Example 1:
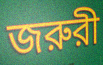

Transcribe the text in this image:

জরুরী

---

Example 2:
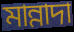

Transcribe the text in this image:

মান্নাদা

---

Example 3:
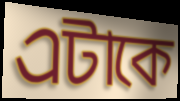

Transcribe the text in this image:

এটাকে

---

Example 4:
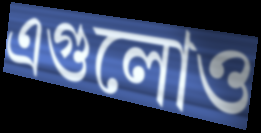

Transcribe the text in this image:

এগুলোও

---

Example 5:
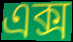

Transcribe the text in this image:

এক্স